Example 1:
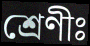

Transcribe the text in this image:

শ্ৰেণীঃ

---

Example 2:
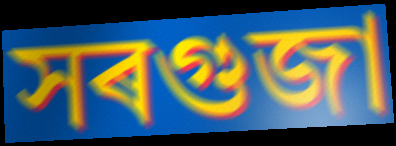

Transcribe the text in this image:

সৰগুজা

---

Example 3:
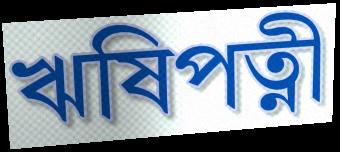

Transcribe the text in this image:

ঋষিপত্নী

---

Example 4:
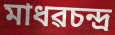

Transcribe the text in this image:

মাধৱচন্দ্ৰ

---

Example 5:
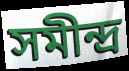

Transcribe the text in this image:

সমীন্দ্ৰ